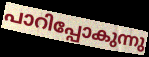
പാറിപ്പോകുന്നു